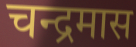
चन्द्रमास